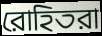
রোহিতরা